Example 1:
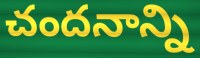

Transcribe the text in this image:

చందనాన్ని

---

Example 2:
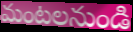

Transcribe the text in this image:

మంటలనుండి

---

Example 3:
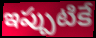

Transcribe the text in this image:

ఇప్పుటికే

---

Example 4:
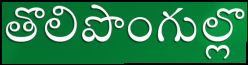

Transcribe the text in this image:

తొలిపొంగుల్లొ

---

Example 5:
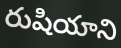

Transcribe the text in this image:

రుషియాని